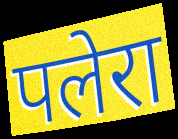
पलेरा